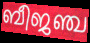
ബീജഞ്ച